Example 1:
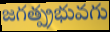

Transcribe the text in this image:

జగత్ప్రభువగు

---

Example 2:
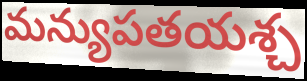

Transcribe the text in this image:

మన్యుపతయశ్చ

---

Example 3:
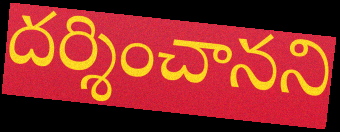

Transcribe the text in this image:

దర్శించానని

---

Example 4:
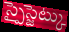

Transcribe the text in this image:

స్పైస్జెట్కు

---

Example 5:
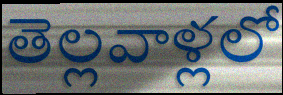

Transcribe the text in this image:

తెల్లవాళ్లలో